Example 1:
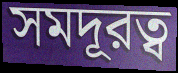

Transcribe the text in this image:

সমদূরত্ব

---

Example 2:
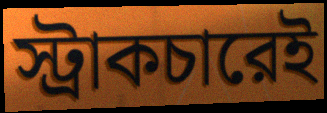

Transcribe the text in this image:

স্ট্রাকচারেই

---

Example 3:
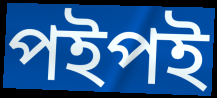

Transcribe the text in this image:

পইপই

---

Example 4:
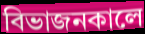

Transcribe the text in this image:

বিভাজনকালে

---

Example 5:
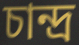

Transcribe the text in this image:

চান্দ্র